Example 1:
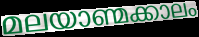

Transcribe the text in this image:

മലയാണ്മക്കാലം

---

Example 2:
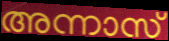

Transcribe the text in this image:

അന്നാസ്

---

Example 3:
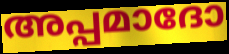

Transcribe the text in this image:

അപ്പമാദോ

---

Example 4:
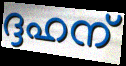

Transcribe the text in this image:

ദ്ദഹന്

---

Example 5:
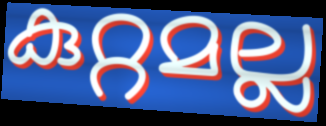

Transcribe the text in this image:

കുറ്റമല്ല